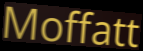
Moffatt